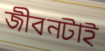
জীবনটাই